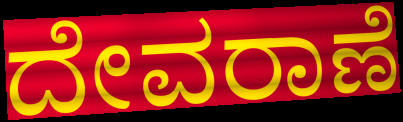
ದೇವರಾಣೆ